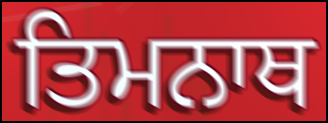
ਤਿਮਨਾਥ